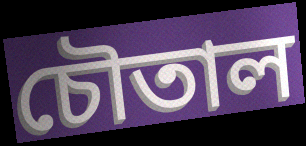
চৌতাল